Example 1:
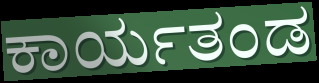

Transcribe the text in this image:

ಕಾರ್ಯತಂಡ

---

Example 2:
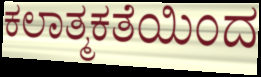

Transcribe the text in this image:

ಕಲಾತ್ಮಕತೆಯಿಂದ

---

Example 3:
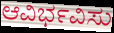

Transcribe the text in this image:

ಆವಿರ್ಭವಿಸು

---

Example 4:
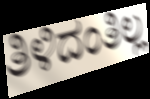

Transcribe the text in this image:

ತಿಳಿದಂತಿಲ್ಲ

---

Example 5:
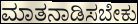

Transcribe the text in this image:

ಮಾತನಾಡಿಸಬೇಕು